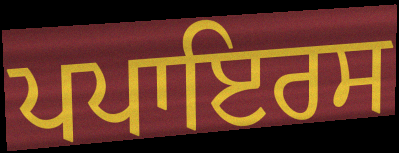
ਪਪਾਇਰਸ